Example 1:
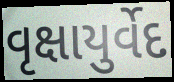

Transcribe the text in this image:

વૃક્ષાયુર્વેદ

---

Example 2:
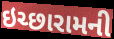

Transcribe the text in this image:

ઇચ્છારામની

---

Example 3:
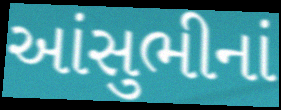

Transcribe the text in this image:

આંસુભીનાં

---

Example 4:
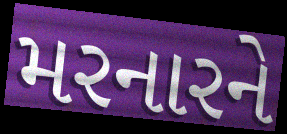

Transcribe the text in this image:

મરનારને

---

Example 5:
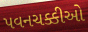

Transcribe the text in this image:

પવનચક્કીઓ